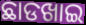
ଛାଡଖାଇ